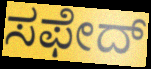
ಸಫೇದ್